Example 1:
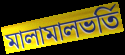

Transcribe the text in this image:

মালামালভর্তি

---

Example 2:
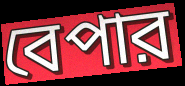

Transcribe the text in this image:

বেপার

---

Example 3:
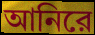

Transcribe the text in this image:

আনিরে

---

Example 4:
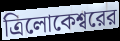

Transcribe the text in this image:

ত্রিলোকেশ্বরের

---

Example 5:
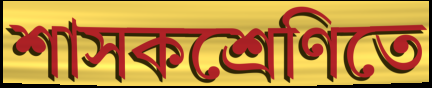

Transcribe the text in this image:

শাসকশ্রেণিতে